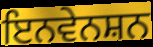
ਇਨਵੇਨਸ਼ਨ